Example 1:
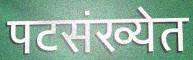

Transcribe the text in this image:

पटसंख्येत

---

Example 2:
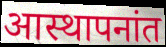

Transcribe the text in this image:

आस्थापनांत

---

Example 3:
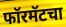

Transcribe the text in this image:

फॉरमॅटचा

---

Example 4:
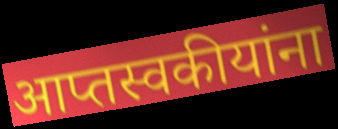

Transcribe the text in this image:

आप्तस्वकीयांना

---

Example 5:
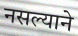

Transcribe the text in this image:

नसल्याने